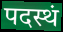
पदस्थं